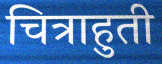
चित्राहुती